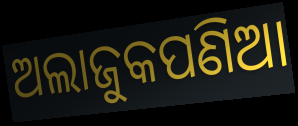
ଅଲାଜୁକପଣିଆ